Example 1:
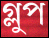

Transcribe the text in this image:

গ্লুপ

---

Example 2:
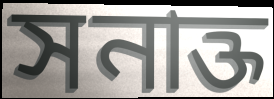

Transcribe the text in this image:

সনাক্ত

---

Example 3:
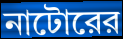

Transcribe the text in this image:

নাটোরের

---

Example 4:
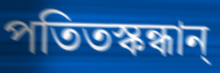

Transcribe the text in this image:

পতিতস্কন্ধান্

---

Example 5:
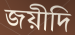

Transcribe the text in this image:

জয়ীদি